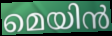
മെയിൻ